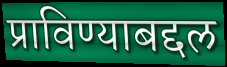
प्राविण्याबद्दल